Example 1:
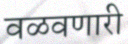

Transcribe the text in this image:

वळवणारी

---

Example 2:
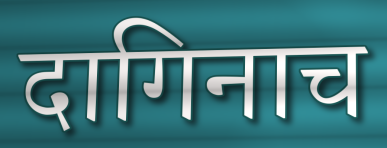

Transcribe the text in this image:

दागिनाच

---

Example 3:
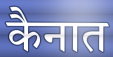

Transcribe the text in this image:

कैनात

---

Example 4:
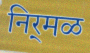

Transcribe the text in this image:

निर्मळ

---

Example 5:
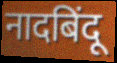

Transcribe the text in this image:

नादबिंदू